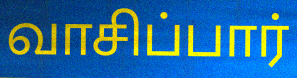
வாசிப்பார்